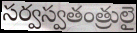
సర్వస్వతంత్రులై